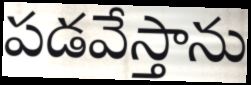
పడవేస్తాను